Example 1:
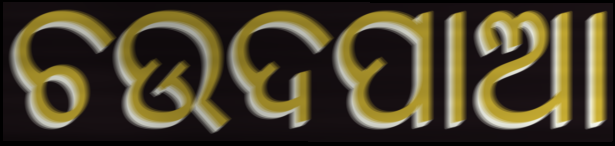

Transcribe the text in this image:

ଚଉଦପାଆ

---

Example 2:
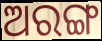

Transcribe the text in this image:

ଅରଙ୍ଗ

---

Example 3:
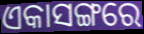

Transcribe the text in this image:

ଏକାସଙ୍ଗରେ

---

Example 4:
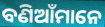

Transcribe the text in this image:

ବଣିଆଁମାନେ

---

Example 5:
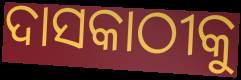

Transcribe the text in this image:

ଦାସକାଠୀକୁ